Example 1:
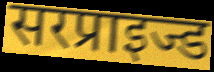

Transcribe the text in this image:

सरप्राइज्ड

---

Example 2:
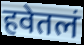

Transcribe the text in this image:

हवेतलं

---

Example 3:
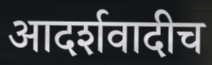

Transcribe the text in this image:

आदर्शवादीच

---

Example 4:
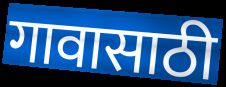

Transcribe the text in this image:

गावासाठी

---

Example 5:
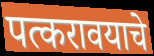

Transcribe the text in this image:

पत्करावयाचे